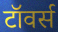
टॉवर्स